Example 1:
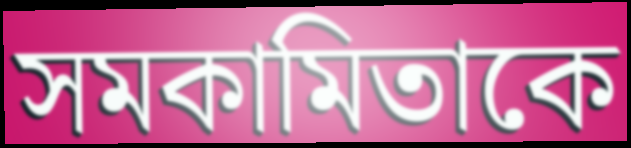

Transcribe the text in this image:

সমকামিতাকে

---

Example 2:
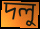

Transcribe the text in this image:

দলু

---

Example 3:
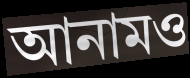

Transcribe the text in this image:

আনামও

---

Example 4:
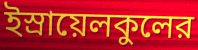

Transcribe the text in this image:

ইস্রায়েলকুলের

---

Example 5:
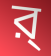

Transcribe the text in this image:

র্